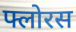
फ्लोरस